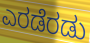
ಎರಡೆರಡು